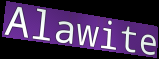
Alawite